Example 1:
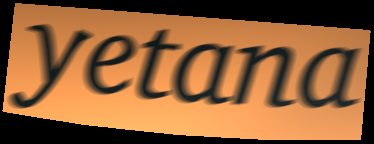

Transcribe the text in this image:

yetana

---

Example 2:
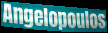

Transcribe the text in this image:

Angelopoulos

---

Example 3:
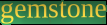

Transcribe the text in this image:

gemstone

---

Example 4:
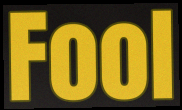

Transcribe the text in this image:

Fool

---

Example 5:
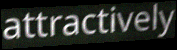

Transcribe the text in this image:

attractively